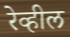
रेव्हील